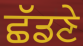
ਛੱਡਣੇ